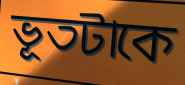
ভূতটাকে